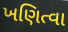
ખણિત્વા